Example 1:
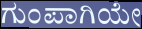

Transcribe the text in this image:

ಗುಂಪಾಗಿಯೇ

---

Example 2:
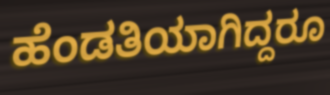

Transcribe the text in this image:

ಹೆಂಡತಿಯಾಗಿದ್ದರೂ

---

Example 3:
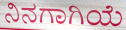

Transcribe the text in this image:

ನಿನಗಾಗಿಯೆ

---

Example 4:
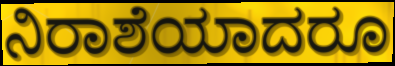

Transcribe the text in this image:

ನಿರಾಶೆಯಾದರೂ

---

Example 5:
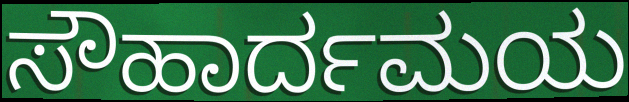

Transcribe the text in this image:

ಸೌಹಾರ್ದಮಯ